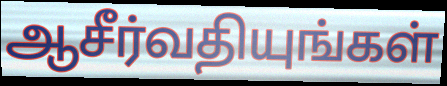
ஆசீர்வதியுங்கள்